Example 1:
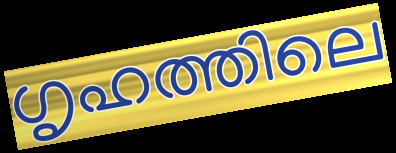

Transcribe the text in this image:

ഗൃഹത്തിലെ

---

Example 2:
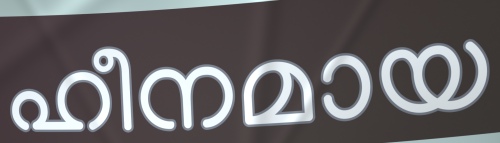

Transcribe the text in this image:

ഹീനമായ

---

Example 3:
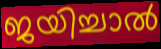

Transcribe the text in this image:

ജയിച്ചാൽ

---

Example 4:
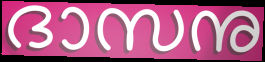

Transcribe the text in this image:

ദാസനു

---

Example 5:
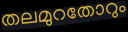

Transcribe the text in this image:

തലമുറതോറും